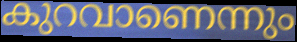
കുറവാണെന്നും